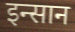
इन्सान